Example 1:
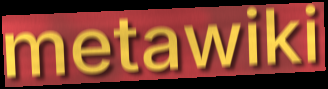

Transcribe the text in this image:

metawiki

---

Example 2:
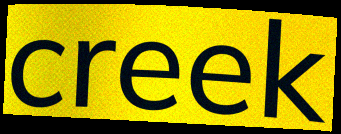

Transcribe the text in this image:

creek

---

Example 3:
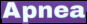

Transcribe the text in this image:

Apnea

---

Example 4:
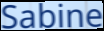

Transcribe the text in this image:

Sabine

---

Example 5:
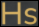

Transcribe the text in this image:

Hs